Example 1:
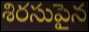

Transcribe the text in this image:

శిరసుపైన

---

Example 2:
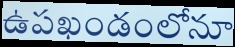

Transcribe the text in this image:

ఉపఖండంలోనూ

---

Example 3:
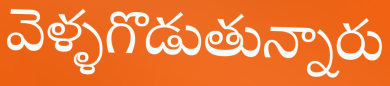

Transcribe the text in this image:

వెళ్ళగొడుతున్నారు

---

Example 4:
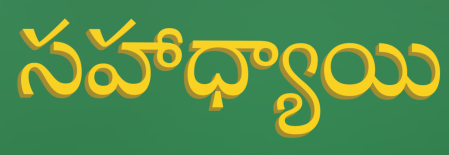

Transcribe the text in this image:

సహాధ్యాయి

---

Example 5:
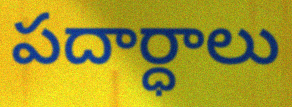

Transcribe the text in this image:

పదార్ధాలు